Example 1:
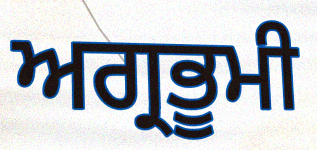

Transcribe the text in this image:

ਅਗ੍ਰਭੂਮੀ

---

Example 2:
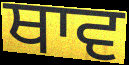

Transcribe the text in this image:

ਥਾਵ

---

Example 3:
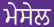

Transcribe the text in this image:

ਮੇਸੇਲ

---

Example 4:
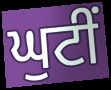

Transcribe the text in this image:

ਘੁਟੀਂ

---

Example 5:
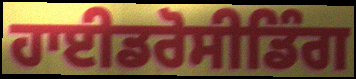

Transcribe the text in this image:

ਹਾਈਡਰੋਸੀਡਿੰਗ